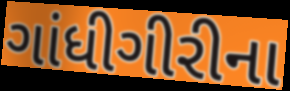
ગાંધીગીરીના